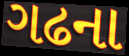
ગઢના